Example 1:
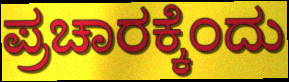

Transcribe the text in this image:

ಪ್ರಚಾರಕ್ಕೆಂದು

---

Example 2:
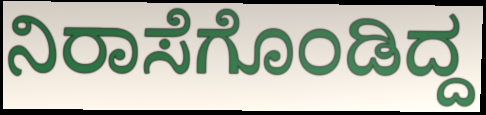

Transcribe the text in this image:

ನಿರಾಸೆಗೊಂಡಿದ್ದ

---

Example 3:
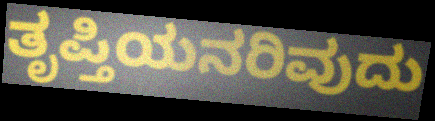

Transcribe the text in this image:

ತೃಪ್ತಿಯನರಿವುದು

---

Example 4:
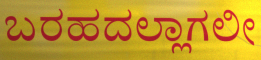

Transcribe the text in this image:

ಬರಹದಲ್ಲಾಗಲೀ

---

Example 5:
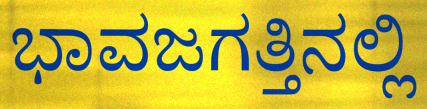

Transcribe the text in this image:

ಭಾವಜಗತ್ತಿನಲ್ಲಿ